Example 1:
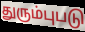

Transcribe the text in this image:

துரும்புபடு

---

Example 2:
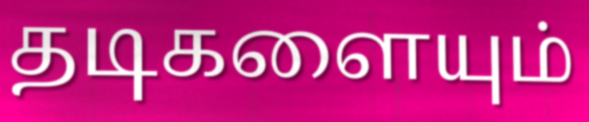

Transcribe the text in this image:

தடிகளையும்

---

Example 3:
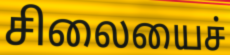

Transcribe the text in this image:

சிலையைச்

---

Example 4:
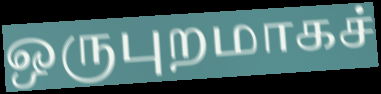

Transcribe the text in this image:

ஒருபுறமாகச்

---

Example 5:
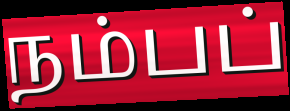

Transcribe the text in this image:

நம்பப்